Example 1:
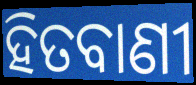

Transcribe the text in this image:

ହିତବାଣୀ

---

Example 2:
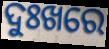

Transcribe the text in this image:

ଦୁଃଖରେ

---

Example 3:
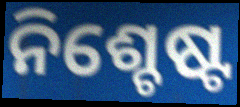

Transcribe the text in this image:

ନିଶ୍ଚେଷ୍ଟ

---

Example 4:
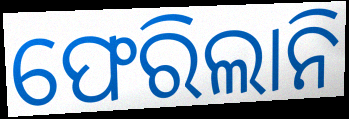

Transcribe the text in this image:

ଫେରିଲାନି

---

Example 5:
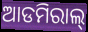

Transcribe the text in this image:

ଆଡମିରାଲ୍